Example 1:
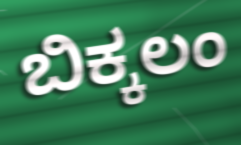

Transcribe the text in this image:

ಬಿಕ್ಕಲಂ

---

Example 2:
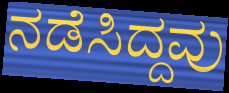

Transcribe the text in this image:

ನಡೆಸಿದ್ದವು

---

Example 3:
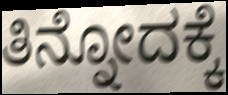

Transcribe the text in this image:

ತಿನ್ನೋದಕ್ಕೆ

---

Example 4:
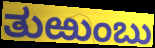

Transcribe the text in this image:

ತುಱುಂಬು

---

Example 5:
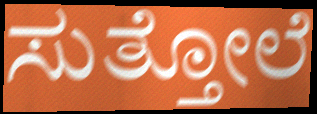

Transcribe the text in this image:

ಸುತ್ತೋಲೆ